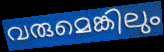
വരുമെങ്കിലും